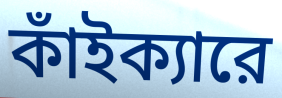
কাঁইক্যারে